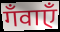
गँवाएँ